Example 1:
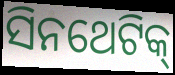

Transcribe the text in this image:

ସିନଥେଟିକ୍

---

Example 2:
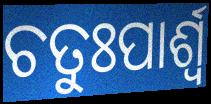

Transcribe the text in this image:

ଚତୁଃପାର୍ଶ୍ବ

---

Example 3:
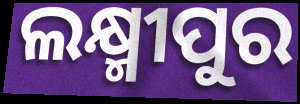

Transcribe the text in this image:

ଲକ୍ଷ୍ମୀପୁର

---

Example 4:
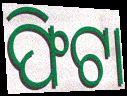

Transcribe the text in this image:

ଫିଟା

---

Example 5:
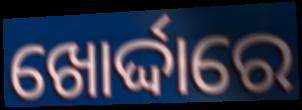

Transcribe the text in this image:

ଖୋର୍ଦ୍ଦାରେ